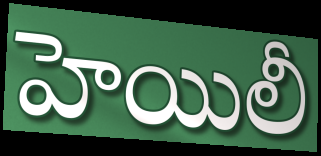
హెయిలీ